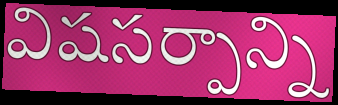
విషసర్పాన్ని